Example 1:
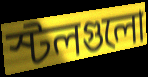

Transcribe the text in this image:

স্টলগুলো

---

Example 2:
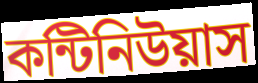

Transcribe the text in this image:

কন্টিনিউয়াস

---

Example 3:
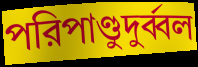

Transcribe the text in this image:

পরিপাণ্ডুদুর্ব্বল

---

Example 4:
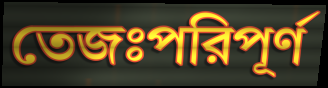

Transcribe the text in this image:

তেজঃপরিপূর্ণ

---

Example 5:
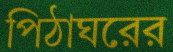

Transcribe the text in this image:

পিঠাঘরের